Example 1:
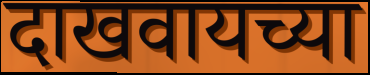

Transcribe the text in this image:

दाखवायच्या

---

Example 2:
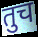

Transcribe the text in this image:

तुच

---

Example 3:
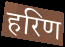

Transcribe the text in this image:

हरिण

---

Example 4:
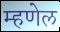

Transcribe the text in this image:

म्हणेल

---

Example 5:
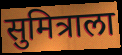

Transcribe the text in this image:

सुमित्राला